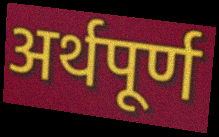
अर्थपूर्ण